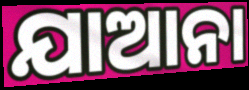
ଯାଆନା